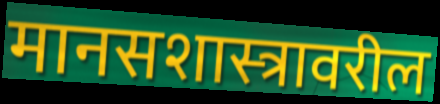
मानसशास्त्रावरील